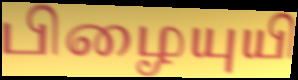
பிழையுயி